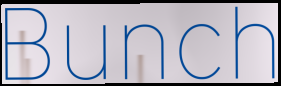
Bunch